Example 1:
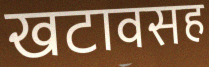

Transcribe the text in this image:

खटावसह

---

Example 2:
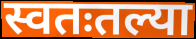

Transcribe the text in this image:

स्वतःतल्या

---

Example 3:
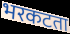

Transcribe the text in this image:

भरकटता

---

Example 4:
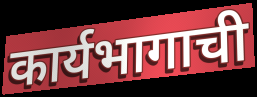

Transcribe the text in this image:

कार्यभागाची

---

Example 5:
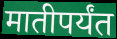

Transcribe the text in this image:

मातीपर्यंत